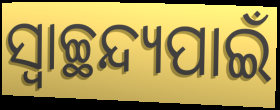
ସ୍ୱାଚ୍ଛନ୍ଦ୍ୟପାଇଁ